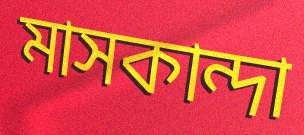
মাসকান্দা